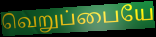
வெறுப்பையே